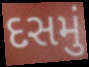
દસમું